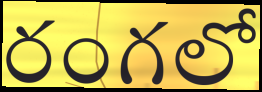
రంగలో